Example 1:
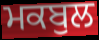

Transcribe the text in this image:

ਮਕਬੁਲ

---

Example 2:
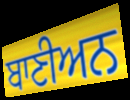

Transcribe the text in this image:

ਬਾਣੀਅਨ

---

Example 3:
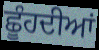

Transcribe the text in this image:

ਛੂੰਹਦੀਆਂ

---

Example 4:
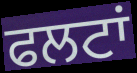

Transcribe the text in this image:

ਫਲਟਾਂ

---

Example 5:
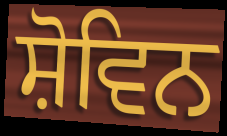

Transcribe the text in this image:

ਸ਼ੋਵਿਨ